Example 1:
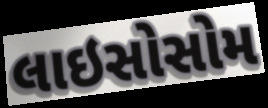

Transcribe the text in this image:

લાઇસોસોમ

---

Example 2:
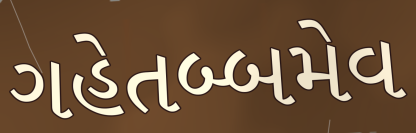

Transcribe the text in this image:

ગહેતબ્બમેવ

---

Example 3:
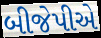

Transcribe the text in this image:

બીજેપીએ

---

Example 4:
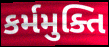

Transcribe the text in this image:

કર્મમુક્તિ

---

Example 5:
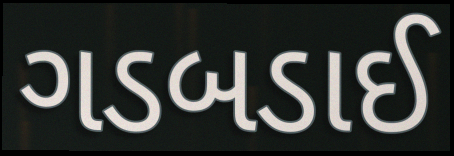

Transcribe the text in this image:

ગડબડાઈ